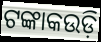
ଟଙ୍କାକଉଡ଼ି